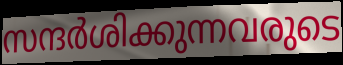
സന്ദർശിക്കുന്നവരുടെ